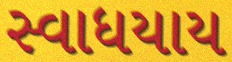
સ્વાધયાય